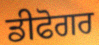
ਡੀਫੋਗਰ